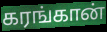
கரங்கான்